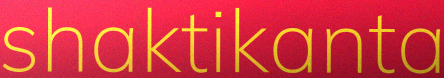
shaktikanta